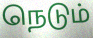
நெடும்